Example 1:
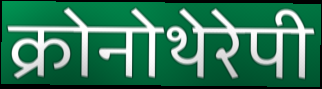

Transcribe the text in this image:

क्रोनोथेरेपी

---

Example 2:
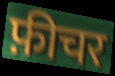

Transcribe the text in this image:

फ़ीचर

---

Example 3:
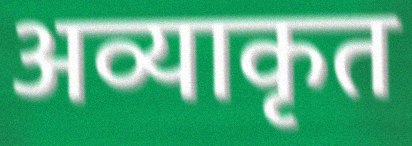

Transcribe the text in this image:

अव्याकृत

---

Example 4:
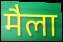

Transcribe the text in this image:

मैला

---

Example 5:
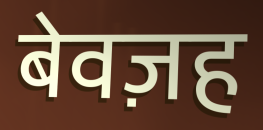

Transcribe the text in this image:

बेवज़ह